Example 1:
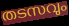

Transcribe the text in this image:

തടസവും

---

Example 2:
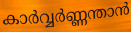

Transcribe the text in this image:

കാർവ്വർണ്ണന്താൻ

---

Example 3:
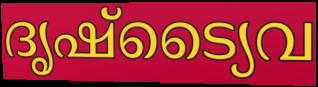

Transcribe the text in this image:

ദൃഷ്ട്യൈവ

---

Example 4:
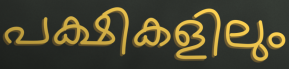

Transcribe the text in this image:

പക്ഷികളിലും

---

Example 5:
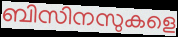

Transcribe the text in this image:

ബിസിനസുകളെ